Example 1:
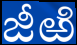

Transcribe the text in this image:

జీఱి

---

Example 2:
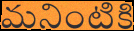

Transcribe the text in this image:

మనింటికి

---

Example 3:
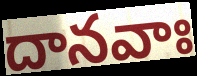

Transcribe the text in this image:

దానవాః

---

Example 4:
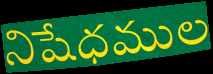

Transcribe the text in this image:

నిషేధముల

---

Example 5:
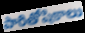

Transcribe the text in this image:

పారితోషికాలు